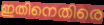
ഇതിനെതിരെ